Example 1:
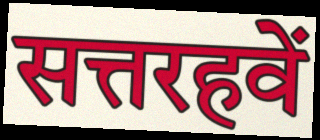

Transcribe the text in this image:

सत्तरहवें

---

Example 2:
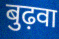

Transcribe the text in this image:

बुढ़वा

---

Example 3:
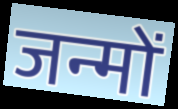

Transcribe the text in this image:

जन्मों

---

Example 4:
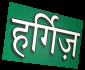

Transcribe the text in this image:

हर्गिज़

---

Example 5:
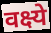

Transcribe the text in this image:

वक्ष्ये